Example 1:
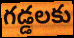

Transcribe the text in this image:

గడ్డలకు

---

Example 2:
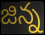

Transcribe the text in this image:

జిన్న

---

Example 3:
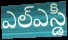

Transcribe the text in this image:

ఎల్ఎస్డీ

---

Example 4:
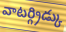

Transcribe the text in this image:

వాటర్గ్రిడ్కు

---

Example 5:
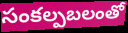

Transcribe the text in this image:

సంకల్పబలంతో